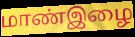
மாண்இழை